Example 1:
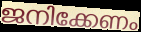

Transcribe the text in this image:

ജനിക്കേണം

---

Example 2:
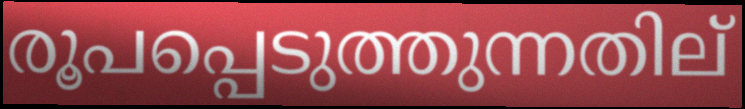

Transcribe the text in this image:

രൂപപ്പെടുത്തുന്നതില്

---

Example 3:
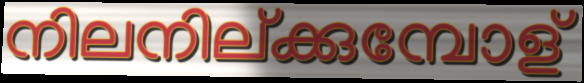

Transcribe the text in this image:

നിലനില്ക്കുമ്പോള്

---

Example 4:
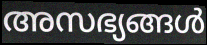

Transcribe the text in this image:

അസഭ്യങ്ങൾ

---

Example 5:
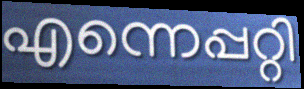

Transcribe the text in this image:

എന്നെപ്പറ്റി